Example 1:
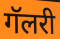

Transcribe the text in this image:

गॅलरी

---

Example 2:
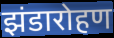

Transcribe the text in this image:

झंडारोहण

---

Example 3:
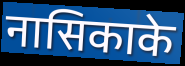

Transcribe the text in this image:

नासिकाके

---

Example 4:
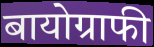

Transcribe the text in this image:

बायोग्राफी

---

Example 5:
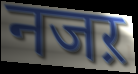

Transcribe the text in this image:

नजऱ